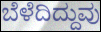
ಬೆಳೆದಿದ್ದುವು